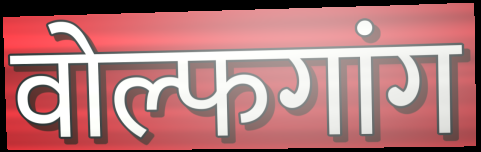
वोल्फगांग